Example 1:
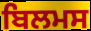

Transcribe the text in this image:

ਬਿਲਮਸ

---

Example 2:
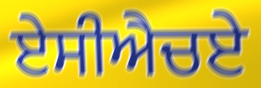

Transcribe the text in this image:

ਏਸੀਐਚਏ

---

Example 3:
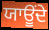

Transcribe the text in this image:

ਯਾਊਂਦੇ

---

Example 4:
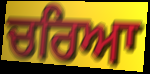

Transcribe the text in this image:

ਚਰਿਆ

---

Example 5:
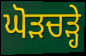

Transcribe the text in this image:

ਘੋੜਚੜ੍ਹੇ